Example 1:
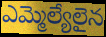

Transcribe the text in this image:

ఎమ్మెల్యేలైన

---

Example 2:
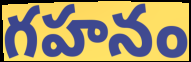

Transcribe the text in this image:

గహనం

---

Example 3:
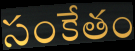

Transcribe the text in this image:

సంకేతం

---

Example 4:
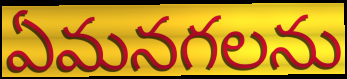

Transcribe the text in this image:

ఏమనగలను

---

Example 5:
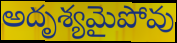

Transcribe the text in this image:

అదృశ్యమైపోవు